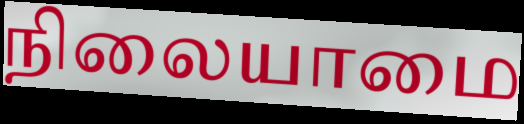
நிலையாமை